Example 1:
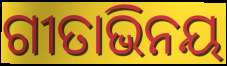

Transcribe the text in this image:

ଗୀତାଭିନୟ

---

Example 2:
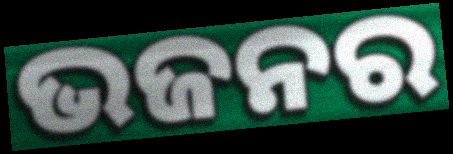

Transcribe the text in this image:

ଭଜନର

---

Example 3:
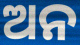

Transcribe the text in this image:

ଅନ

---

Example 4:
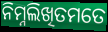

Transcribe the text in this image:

ନିମ୍ନଲିଖିତମତେ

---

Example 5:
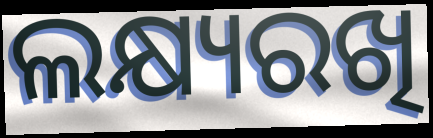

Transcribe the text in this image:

ଲକ୍ଷ୍ୟରଖି